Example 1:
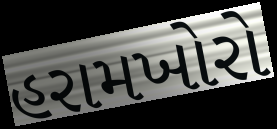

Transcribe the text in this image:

હરામખોરો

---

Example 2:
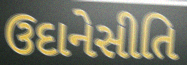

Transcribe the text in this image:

ઉદાનેસીતિ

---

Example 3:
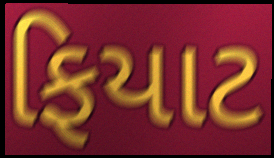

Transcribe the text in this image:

ફિયાટ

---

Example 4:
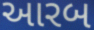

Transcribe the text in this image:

આરબ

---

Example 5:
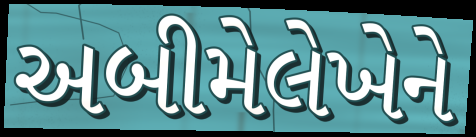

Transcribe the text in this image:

અબીમેલેખેને